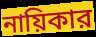
নায়িকার